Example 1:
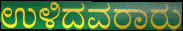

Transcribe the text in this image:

ಉಳಿದವರಾರು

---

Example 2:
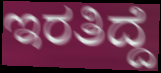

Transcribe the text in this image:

ಇರತಿದ್ದೆ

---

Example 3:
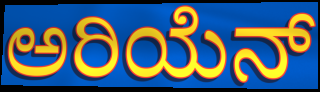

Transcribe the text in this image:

ಅರಿಯೆನ್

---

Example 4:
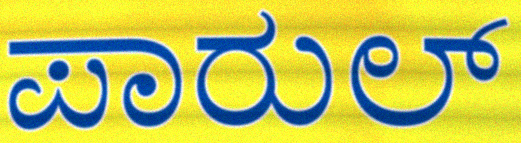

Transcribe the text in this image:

ಪಾರುಲ್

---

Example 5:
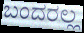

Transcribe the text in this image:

ಬಂದರಲ್ಲ